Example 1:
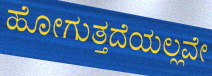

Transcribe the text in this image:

ಹೋಗುತ್ತದೆಯಲ್ಲವೇ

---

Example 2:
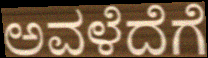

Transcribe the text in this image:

ಅವಳೆದೆಗೆ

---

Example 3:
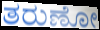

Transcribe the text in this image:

ತರುಣೋ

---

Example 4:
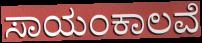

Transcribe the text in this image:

ಸಾಯಂಕಾಲವೆ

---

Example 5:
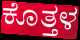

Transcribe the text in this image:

ಕೊತ್ತಳ